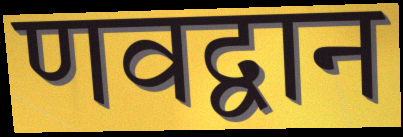
णवद्वान